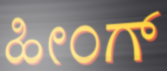
ಹೀಂಗ್